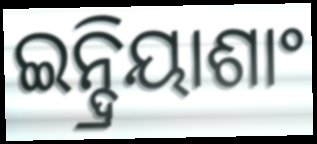
ଇନ୍ଦ୍ରିୟାଶାଂ